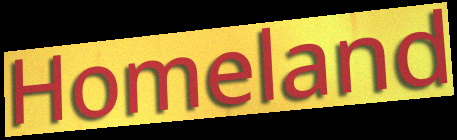
Homeland